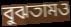
বুঝতামও